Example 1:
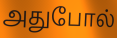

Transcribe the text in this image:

அதுபோல்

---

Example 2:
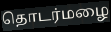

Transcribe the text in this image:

தொடர்மழை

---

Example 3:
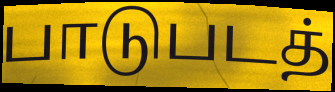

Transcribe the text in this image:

பாடுபடத்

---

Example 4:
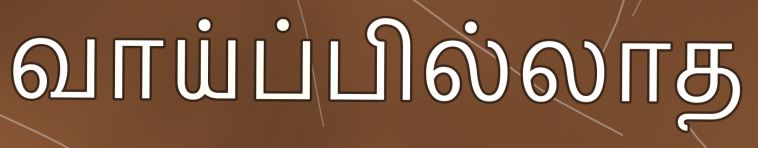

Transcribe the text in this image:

வாய்ப்பில்லாத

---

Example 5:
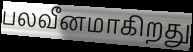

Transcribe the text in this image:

பலவீனமாகிறது